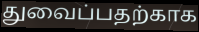
துவைப்பதற்காக